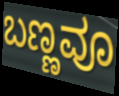
ಬಣ್ಣವೂ